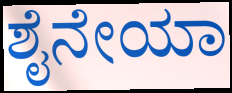
ಶೈನೇಯಾ